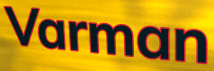
Varman